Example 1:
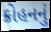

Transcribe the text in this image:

ક્રોહનનું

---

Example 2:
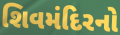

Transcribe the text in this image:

શિવમંદિરનો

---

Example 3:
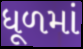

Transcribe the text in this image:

ધૂળમાં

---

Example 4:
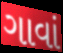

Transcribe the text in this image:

ગાવાં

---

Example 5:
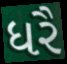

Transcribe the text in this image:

ધરૈ